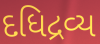
દધિદ્રવ્ય